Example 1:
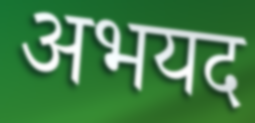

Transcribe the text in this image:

अभयद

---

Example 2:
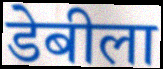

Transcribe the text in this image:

डेबीला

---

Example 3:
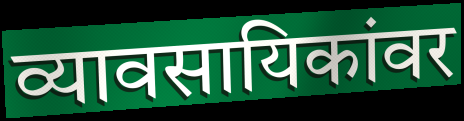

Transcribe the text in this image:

व्यावसायिकांवर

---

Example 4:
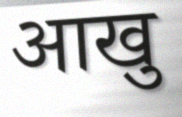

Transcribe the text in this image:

आखु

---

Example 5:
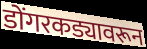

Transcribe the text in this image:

डोंगरकड्यावरून